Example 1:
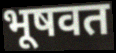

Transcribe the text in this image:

भूषवत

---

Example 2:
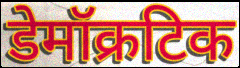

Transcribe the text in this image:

डेमॉक्रटिक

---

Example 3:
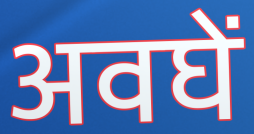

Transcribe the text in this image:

अवघें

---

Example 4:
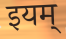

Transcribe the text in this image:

इयम्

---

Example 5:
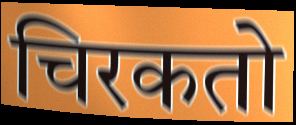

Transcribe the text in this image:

चिरकतो